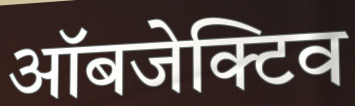
ऑबजेक्टिव